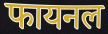
फायनल